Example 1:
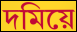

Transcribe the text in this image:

দমিয়ে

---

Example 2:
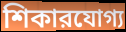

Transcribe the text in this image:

শিকারযোগ্য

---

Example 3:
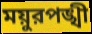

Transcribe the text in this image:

ময়ুরপঙ্খী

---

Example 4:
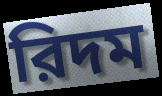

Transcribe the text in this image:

রিদম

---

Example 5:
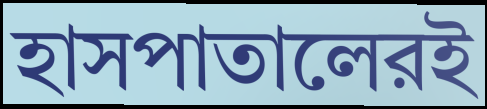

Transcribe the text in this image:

হাসপাতালেরই